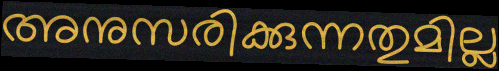
അനുസരിക്കുന്നതുമില്ല